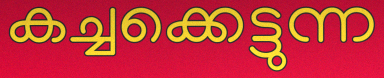
കച്ചക്കെട്ടുന്ന